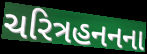
ચરિત્રહનનના